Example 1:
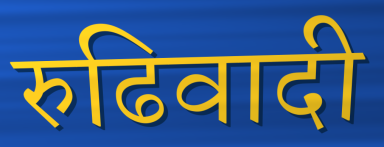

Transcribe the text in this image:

रुढिवादी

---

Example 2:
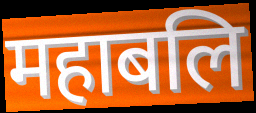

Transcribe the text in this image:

महाबलि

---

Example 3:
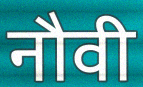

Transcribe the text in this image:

नौवी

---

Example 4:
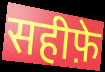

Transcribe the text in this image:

सहीफ़े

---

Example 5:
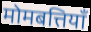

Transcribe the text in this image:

मोमबत्तियाँ